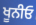
ਖੂਨੀਓ